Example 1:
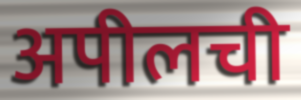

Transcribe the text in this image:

अपीलची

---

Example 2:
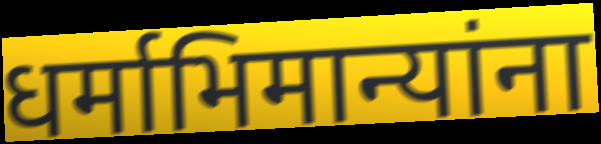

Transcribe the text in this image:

धर्माभिमान्यांना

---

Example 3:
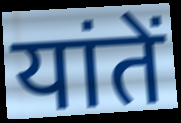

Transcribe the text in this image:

यांतें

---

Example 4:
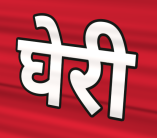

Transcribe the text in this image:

घेरी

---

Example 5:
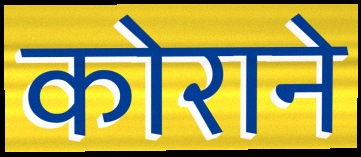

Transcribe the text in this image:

कोराने